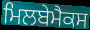
ਮਿਲਬੇਮੈਕਸ